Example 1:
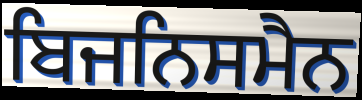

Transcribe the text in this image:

ਬਿਜਨਿਸਮੈਨ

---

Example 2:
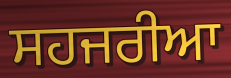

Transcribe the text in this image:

ਸਹਜਰੀਆ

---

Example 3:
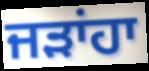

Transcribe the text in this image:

ਜੜਾਂਹਾ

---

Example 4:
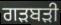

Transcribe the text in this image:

ਗੜਬੜੀ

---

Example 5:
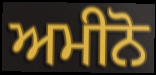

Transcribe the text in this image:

ਅਮੀਨੋ